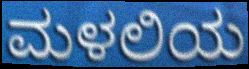
ಮಳಲಿಯ